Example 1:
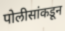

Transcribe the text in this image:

पोलीसांकडून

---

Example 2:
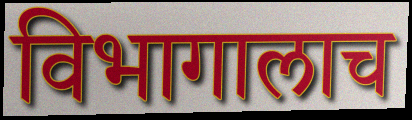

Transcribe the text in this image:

विभागालाच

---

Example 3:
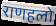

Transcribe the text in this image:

राणहलो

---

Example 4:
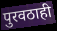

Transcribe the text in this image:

पुरवठाही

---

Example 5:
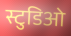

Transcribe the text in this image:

स्टुडिओ